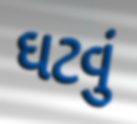
ઘટવું